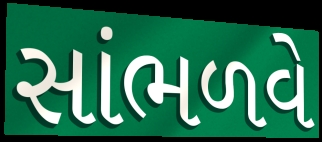
સાંભળવે